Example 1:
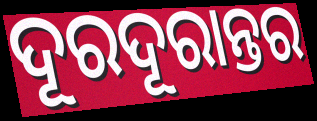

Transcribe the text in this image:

ଦୂରଦୂରାନ୍ତର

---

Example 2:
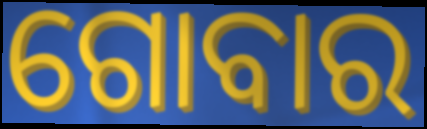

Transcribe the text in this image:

ଗୋବାର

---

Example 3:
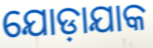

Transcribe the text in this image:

ଯୋଡ଼ାଯାକ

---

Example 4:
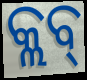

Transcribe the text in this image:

କ୍ଲବ୍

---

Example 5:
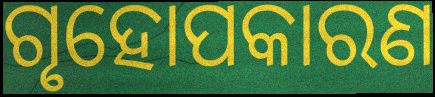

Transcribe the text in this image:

ଗୃହୋପକାରଣ